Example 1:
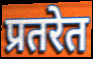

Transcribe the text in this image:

प्रतरेत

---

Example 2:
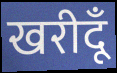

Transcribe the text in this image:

खरीदूँ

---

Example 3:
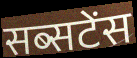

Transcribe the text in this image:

सब्सटेंस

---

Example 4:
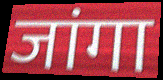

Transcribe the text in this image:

जांगा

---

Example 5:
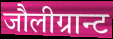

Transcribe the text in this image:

जौलीग्रान्ट